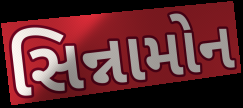
સિન્નામોન